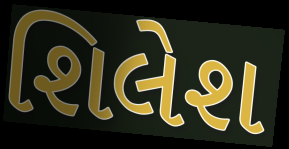
શિલેશ